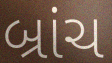
બ્રાંચ